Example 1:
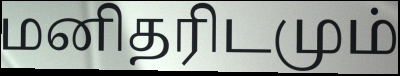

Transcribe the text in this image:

மனிதரிடமும்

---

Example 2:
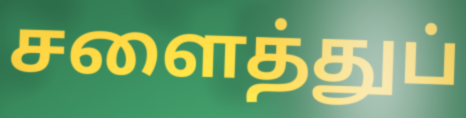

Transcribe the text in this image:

சளைத்துப்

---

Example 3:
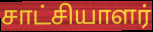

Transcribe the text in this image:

சாட்சியாளர்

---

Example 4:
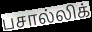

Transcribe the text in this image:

பசால்லிக்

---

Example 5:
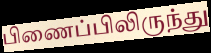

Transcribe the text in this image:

பிணைப்பிலிருந்து